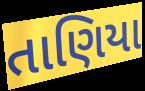
તાણિયા